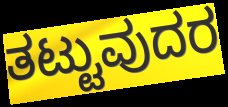
ತಟ್ಟುವುದರ